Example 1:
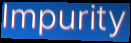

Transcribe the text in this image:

Impurity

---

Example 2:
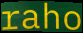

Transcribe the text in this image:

raho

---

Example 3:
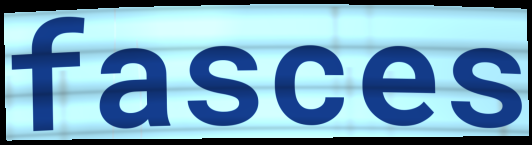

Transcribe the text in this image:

fasces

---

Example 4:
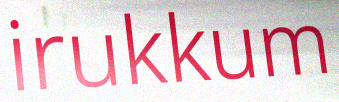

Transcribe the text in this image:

irukkum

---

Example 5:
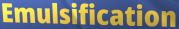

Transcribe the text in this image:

Emulsification